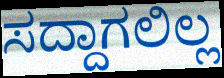
ಸದ್ದಾಗಲಿಲ್ಲ